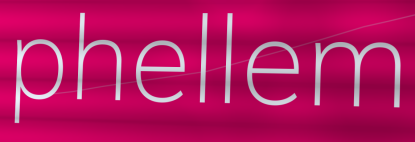
phellem